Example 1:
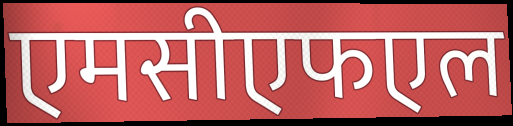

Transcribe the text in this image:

एमसीएफएल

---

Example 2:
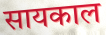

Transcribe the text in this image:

सायकाल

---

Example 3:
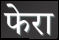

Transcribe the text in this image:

फेरा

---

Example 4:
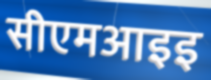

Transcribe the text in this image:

सीएमआइइ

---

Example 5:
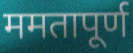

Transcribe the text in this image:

ममतापूर्ण